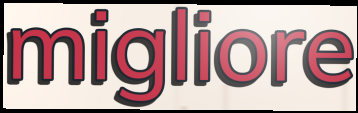
migliore